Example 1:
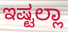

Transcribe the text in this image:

ಇಷ್ಟಲ್ಲಾ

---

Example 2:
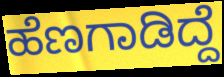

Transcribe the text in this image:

ಹೆಣಗಾಡಿದ್ದೆ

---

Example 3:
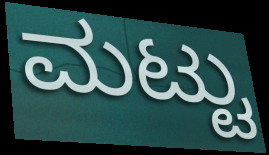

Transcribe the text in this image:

ಮಟ್ಟು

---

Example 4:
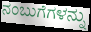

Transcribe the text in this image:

ನಂಬುಗೆಗಳನ್ನು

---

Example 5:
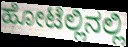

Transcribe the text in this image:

ಹೋಟೆಲ್ಲಿನಲ್ಲಿ